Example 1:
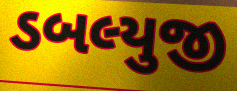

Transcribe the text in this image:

ડબલ્યુજી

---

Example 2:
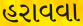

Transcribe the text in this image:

હરાવવા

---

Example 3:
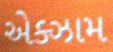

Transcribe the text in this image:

એક્ઝામ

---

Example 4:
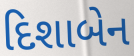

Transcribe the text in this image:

દિશાબેન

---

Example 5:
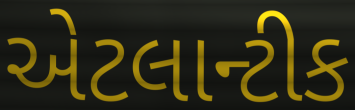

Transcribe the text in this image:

એટલાન્ટીક